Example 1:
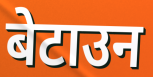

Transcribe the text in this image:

बेटाउन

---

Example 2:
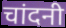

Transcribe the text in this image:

चांदनी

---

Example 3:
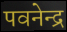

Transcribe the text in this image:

पवनेन्द्र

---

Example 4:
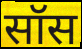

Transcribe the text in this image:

सॉस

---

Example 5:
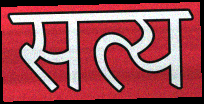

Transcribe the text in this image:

सत्य